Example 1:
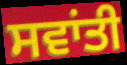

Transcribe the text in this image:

ਸਵਾਂਤੀ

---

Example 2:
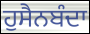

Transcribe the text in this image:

ਹੁਸੈਨਬੰਦਾ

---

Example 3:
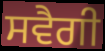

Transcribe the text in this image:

ਸਵੈਗੀ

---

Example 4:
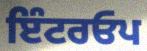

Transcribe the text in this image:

ਇੰਟਰਓਪ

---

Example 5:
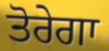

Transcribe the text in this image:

ਤੋਰੇਗਾ